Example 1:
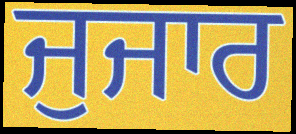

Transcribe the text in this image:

ਜੁਜਾਰ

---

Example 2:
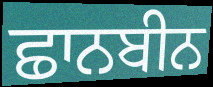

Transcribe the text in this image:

ਛਾਨਬੀਨ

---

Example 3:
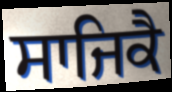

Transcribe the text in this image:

ਸਾਜਿਕੈ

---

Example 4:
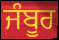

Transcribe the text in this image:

ਜੰਬੂਰ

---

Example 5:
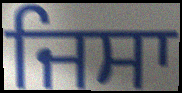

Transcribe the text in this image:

ਜਿਸਾ